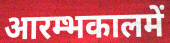
आरम्भकालमें